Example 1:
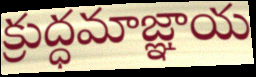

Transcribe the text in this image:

క్రుద్ధమాజ్ఞాయ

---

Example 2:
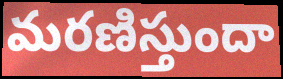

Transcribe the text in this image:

మరణిస్తుందా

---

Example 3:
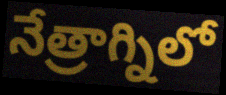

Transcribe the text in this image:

నేత్రాగ్నిలో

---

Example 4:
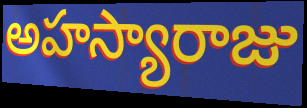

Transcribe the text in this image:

అహస్యారాజు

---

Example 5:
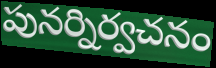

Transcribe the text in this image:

పునర్నిర్వచనం